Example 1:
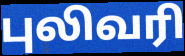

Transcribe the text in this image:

புலிவரி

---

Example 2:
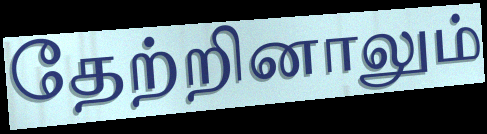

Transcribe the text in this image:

தேற்றினாலும்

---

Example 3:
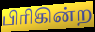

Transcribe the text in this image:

பிரிகின்ற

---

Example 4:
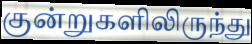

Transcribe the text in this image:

குன்றுகளிலிருந்து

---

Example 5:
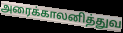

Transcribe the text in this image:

அரைக்காலனித்துவ